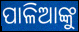
ପାଳିଆଙ୍କୁ